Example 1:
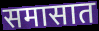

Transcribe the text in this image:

समासात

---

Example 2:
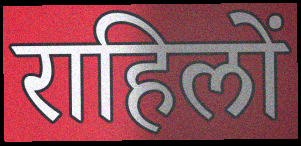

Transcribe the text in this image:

राहिलों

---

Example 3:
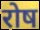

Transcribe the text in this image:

रोष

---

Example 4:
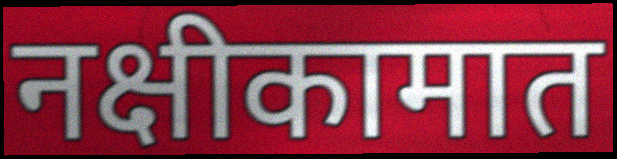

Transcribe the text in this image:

नक्षीकामात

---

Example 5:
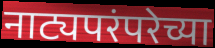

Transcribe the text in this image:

नाट्यपरंपरेच्या